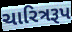
ચારિત્રરૂપ